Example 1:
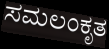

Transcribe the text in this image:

ಸಮಲಂಕೃತ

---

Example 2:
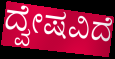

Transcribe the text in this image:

ದ್ವೇಷವಿದೆ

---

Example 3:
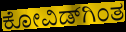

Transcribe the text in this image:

ಕೋವಿಡ್‌ಗಿಂತ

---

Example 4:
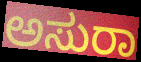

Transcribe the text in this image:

ಅಸುರಾ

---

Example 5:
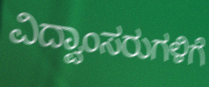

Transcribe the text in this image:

ವಿದ್ವಾಂಸರುಗಳಿಗೆ